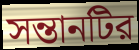
সন্তানটির